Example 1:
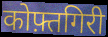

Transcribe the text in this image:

कोफ़्तगिरी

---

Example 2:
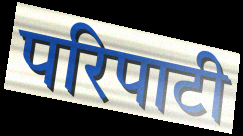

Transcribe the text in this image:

परिपाटी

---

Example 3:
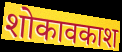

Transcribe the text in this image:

शोकावकाश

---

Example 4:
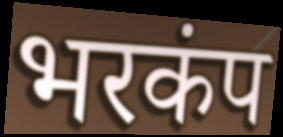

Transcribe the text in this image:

भरकंप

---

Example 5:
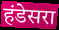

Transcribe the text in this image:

हंडेसरा